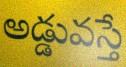
అడ్డువస్తే